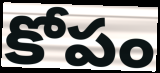
కోపం